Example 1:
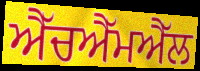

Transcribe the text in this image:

ਐੱਚਐੱਮਐੱਲ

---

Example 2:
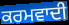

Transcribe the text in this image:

ਕਰਮਵਾਦੀ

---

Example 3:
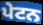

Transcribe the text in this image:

ਪੇਟਨ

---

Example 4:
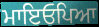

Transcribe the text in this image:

ਮਾਇਓਪਿਆ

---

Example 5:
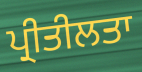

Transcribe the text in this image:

ਪ੍ਰੀਤੀਲਤਾ